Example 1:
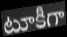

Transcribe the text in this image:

టూకీగా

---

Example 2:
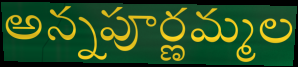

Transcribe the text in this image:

అన్నపూర్ణమ్మల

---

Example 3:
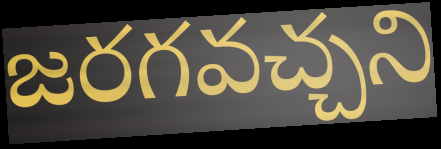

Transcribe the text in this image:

జరగవచ్చని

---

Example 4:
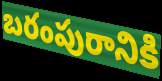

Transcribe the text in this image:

బరంపురానికి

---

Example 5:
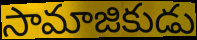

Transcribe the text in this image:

సామాజికుడు